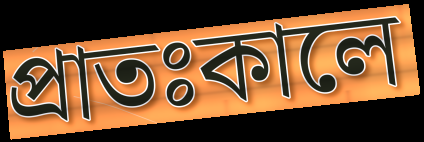
প্রাতঃকালে